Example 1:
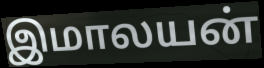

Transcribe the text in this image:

இமாலயன்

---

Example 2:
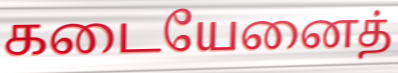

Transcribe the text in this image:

கடையேனைத்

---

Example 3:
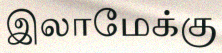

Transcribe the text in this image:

இலாமேக்கு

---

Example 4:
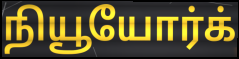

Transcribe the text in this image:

நியூயோர்க்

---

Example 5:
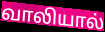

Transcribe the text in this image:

வாலியால்